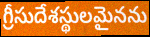
గ్రీసుదేశస్థులమైనను